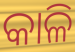
କାଳି